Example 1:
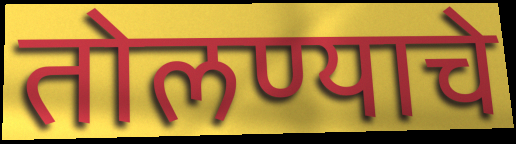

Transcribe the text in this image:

तोलण्याचे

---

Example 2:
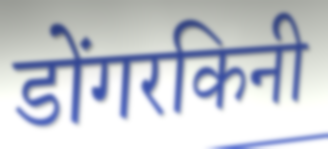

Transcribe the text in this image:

डोंगरकिनी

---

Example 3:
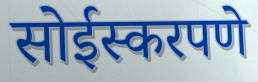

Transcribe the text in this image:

सोईस्करपणे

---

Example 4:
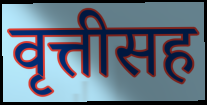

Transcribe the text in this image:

वृत्तीसह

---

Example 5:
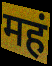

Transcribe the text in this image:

महं